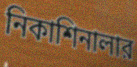
নিকাশিনালার